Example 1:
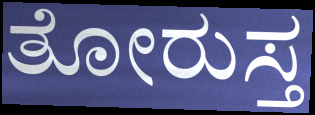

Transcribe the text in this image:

ತೋರುಸ್ತ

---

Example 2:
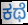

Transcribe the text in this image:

ಕಥೆ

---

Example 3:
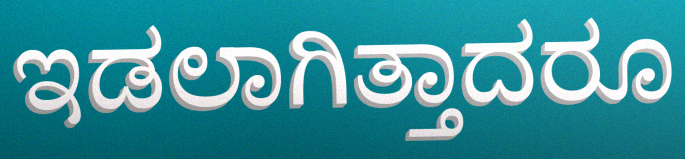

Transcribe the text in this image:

ಇಡಲಾಗಿತ್ತಾದರೂ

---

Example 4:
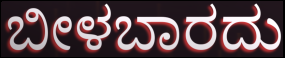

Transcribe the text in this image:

ಬೀಳಬಾರದು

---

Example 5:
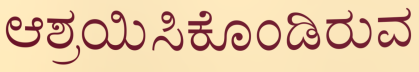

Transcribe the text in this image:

ಆಶ್ರಯಿಸಿಕೊಂಡಿರುವ